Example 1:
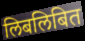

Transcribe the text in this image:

लिबलिबित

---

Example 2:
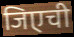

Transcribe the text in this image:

जिएची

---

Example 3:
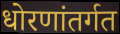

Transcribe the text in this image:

धोरणांतर्गत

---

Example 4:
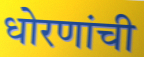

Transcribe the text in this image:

धोरणांची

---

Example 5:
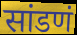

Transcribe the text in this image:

सांडणं